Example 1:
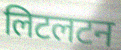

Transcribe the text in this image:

लिटलटन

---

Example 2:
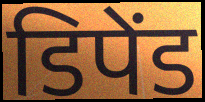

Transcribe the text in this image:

डिपेंड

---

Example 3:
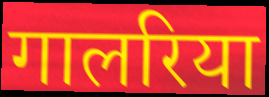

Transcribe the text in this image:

गालरिया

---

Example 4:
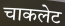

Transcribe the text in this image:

चाकलेट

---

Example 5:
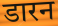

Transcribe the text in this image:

डारन